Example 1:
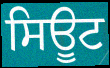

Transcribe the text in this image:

ਸਿਊਟ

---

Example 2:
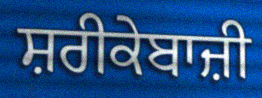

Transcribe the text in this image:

ਸ਼ਰੀਕੇਬਾਜ਼ੀ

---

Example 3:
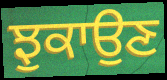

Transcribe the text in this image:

ਝੁਕਾਉਣ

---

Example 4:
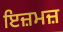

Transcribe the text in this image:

ਇਜ਼ਮਜ਼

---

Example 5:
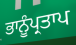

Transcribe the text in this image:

ਭਾਨੂੰਪ੍ਰਤਾਪ